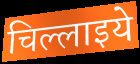
चिल्लाइये